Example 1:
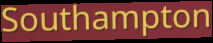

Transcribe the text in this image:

Southampton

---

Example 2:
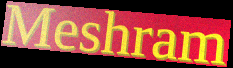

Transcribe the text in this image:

Meshram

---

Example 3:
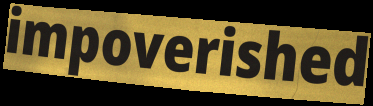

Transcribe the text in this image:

impoverished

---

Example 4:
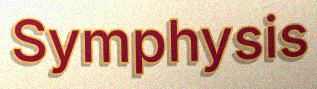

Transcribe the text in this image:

Symphysis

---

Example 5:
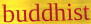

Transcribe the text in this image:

buddhist